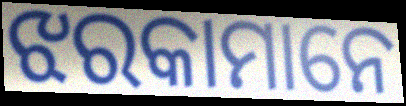
ଝରକାମାନେ